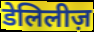
डेलिलीज़